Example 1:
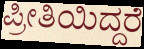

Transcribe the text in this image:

ಪ್ರೀತಿಯಿದ್ದರೆ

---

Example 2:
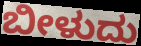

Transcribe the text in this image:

ಬೀಳುದು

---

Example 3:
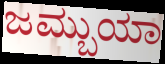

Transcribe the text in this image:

ಜಮ್ಬುಯಾ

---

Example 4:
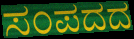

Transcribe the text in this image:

ಸಂಪದದ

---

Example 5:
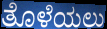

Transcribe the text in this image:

ತೊಳೆಯಲು